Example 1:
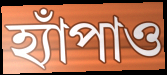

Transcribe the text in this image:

হ্যাঁপাও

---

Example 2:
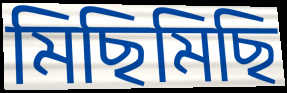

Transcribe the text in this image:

মিছিমিছি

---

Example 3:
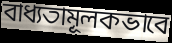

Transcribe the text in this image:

বাধ্যতামূলকভাবে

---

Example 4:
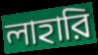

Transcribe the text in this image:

লাহারি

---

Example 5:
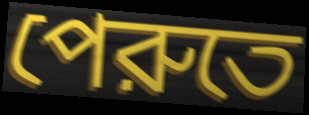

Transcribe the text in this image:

পেরুতে